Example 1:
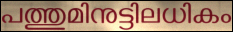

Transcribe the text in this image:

പത്തുമിനുട്ടിലധികം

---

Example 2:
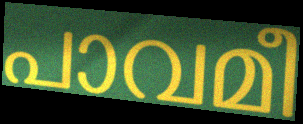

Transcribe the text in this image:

പാവമീ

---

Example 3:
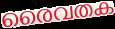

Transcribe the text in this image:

രൈവതക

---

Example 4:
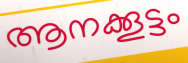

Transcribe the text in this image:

ആനക്കൂട്ടം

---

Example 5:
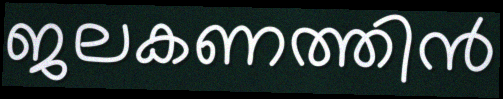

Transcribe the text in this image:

ജലകണത്തിൻ